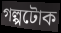
গল্পটোক